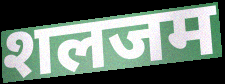
शलजम